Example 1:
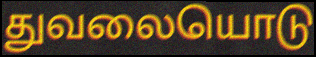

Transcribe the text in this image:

துவலையொடு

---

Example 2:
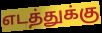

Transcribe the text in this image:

எடத்துக்கு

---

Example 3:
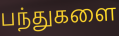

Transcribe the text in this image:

பந்துகளை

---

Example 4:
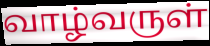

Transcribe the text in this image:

வாழ்வருள்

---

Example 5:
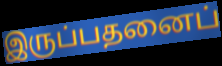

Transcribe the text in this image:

இருப்பதனைப்